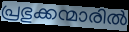
പ്രഭുക്കന്മാരിൽ